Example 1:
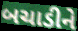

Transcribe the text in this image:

બચાડીને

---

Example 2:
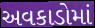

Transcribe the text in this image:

અવકાડોમાં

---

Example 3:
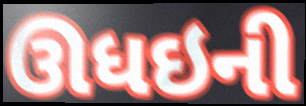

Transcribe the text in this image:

ઊધઇની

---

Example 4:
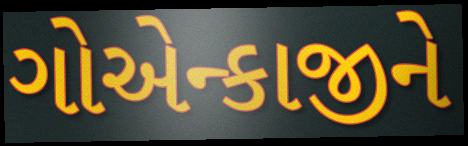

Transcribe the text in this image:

ગોએન્કાજીને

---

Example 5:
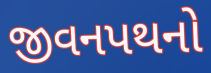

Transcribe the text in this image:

જીવનપથનો